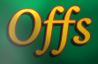
Offs